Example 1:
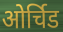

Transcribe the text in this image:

ओर्चिड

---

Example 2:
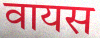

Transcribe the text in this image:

वायस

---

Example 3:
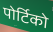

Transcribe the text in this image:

पोर्टिको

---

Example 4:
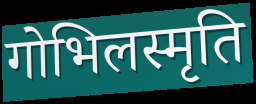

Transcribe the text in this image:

गोभिलस्मृति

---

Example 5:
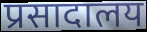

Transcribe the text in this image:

प्रसादालय